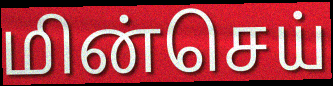
மின்செய்